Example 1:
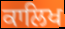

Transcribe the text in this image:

ਕਾਲਿਖ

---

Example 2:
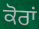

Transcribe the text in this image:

ਕੋਰਾਂ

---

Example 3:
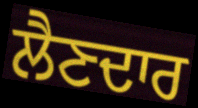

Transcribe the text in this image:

ਲੈਣਦਾਰ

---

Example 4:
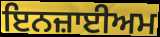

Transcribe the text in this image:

ਇਨਜ਼ਾਈਅਮ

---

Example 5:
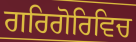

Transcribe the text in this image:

ਗਰਿਗੋਰਿਵਿਚ